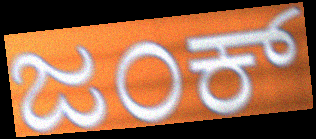
ಜಂಕ್